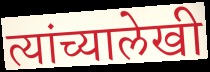
त्यांच्यालेखी